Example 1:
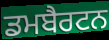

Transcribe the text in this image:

ਡਮਬੈਰਟਨ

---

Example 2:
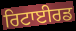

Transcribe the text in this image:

ਰਿਟਾਈਰਡ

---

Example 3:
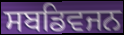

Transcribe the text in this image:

ਸਬਡਿਵਜਨ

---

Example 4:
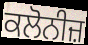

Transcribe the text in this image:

ਕਲੋਨੀਜ਼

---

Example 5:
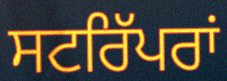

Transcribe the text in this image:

ਸਟਰਿੱਪਰਾਂ